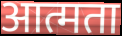
आत्मता